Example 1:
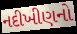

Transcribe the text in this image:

નદીખીણનો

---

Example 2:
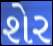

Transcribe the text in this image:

શેર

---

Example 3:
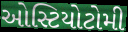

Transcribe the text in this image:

ઓસ્ટિયોટોમી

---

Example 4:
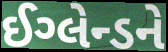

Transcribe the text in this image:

ઈગ્લેન્ડને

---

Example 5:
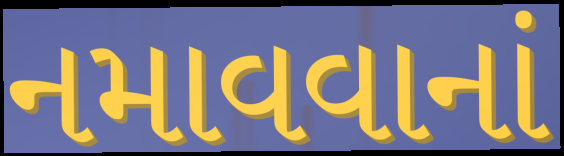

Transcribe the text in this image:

નમાવવાનાં